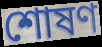
শোষণ